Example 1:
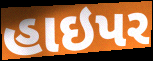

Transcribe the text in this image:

હાઇપર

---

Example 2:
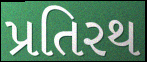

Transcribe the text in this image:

પ્રતિરથ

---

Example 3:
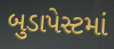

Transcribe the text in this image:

બુડાપેસ્ટમાં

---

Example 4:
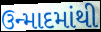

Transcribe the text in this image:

ઉન્માદમાંથી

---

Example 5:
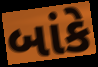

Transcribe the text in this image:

બાંકે